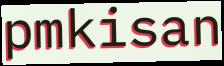
pmkisan